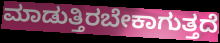
ಮಾಡುತ್ತಿರಬೇಕಾಗುತ್ತದೆ